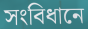
সংবিধানে